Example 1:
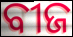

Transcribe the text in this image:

ବୀଜ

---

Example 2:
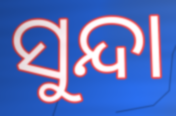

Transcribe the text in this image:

ସୁନ୍ଦା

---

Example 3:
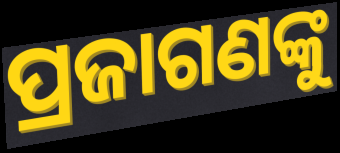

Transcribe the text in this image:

ପ୍ରଜାଗଣଙ୍କୁ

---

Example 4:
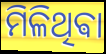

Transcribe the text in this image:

ମିଳିଥିଵା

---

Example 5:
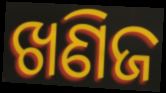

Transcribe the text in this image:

ଖଣିଜ